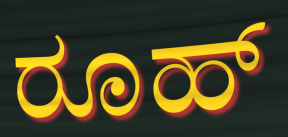
ರೂಹ್